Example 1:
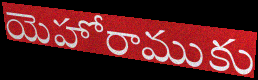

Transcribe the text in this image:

యెహోరాముకు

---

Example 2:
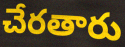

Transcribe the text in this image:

చేరతారు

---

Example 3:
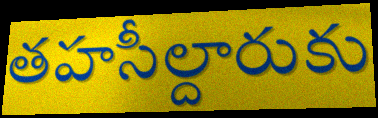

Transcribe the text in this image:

తహసీల్దారుకు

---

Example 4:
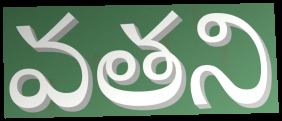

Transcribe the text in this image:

వతని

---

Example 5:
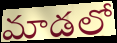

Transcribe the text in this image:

మాడలో